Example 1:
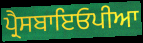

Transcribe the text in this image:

ਪ੍ਰੈਸਬਾਇਓਪੀਆ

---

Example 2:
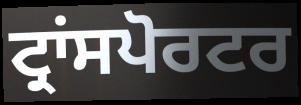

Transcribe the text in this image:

ਟ੍ਰਾਂਸਪੋਰਟਰ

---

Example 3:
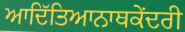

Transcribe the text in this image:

ਆਦਿੱਤਿਆਨਾਥਕੇਂਦਰੀ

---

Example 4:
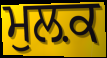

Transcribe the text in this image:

ਮੁਲ਼ਕ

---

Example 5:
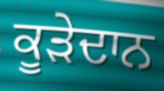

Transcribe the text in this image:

ਕੂੜੇਦਾਨ